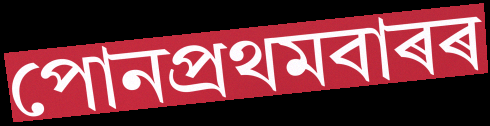
পোনপ্ৰথমবাৰৰ